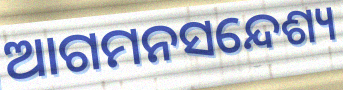
ଆଗମନସନ୍ଦେଶ୍ୟ